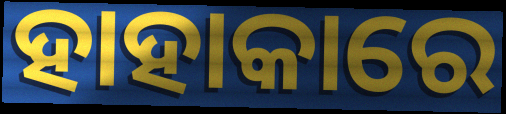
ହାହାକାରେ